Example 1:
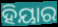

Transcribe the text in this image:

ହିୟାର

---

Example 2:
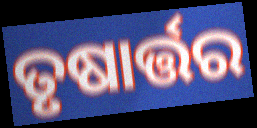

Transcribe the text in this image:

ତୃଷାର୍ତ୍ତର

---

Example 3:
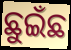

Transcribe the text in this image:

ଛୁଇଁଛ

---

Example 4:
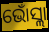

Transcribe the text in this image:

ଭୋଁସ୍ଲା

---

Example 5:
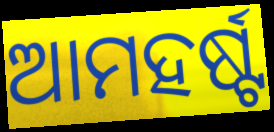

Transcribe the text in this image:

ଆମହର୍ଷ୍ଟ